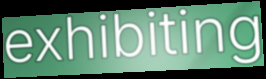
exhibiting